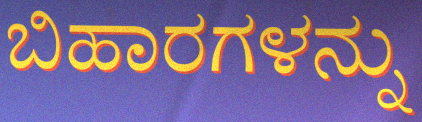
ಬಿಹಾರಗಳನ್ನು